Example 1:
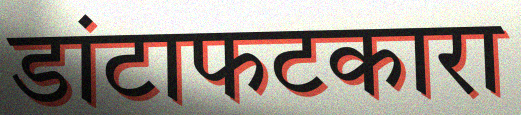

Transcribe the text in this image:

डांटाफटकारा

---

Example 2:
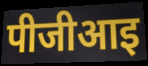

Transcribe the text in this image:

पीजीआइ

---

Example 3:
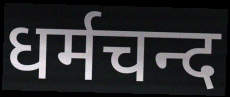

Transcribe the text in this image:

धर्मचन्द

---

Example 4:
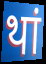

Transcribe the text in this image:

थां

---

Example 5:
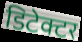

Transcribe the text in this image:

डिटेक्टर